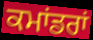
ਕਮਾਂਡਰਾਂ